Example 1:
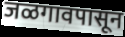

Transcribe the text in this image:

जळगावपासून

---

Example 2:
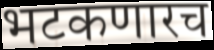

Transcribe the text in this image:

भटकणारच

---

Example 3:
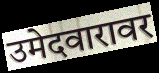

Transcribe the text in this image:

उमेदवारावर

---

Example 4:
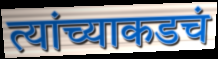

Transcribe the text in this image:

त्यांच्याकडचं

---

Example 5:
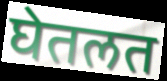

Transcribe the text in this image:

घेतलत